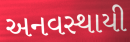
અનવસ્થાયી